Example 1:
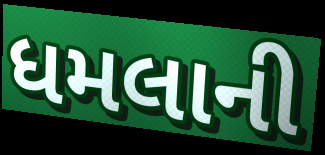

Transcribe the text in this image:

ધમલાની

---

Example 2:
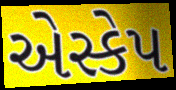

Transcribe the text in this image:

એસ્કેપ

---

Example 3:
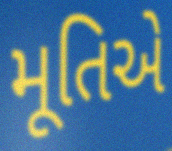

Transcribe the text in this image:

મૂતિએ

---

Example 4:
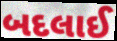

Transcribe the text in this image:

બદલાઈ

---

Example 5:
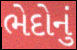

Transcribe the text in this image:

ભેદોનું